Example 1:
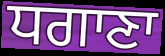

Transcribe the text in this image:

ਧਗਾਣਾ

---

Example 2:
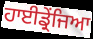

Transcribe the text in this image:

ਹਾਈਡ੍ਰੇਂਜਿਆ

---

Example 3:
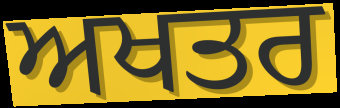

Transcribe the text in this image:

ਅਖਤਰ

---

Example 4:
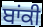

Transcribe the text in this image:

ਬਾਂਕੀ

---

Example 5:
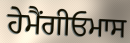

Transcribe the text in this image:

ਹੇਮੈਂਗੀਓਮਾਸ